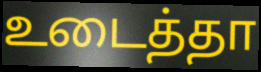
உடைத்தா